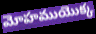
మోహముయొక్క